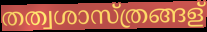
തത്വശാസ്ത്രങ്ങള്